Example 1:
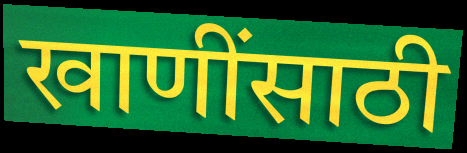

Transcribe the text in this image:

खाणींसाठी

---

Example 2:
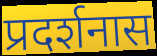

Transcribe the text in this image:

प्रदर्शनास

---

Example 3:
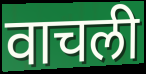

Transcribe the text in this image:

वाचली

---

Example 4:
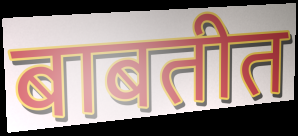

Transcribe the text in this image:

बाबतीत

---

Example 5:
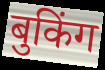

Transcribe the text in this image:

बुकिंग